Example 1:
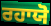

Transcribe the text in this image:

ਰਹਾਯੋ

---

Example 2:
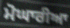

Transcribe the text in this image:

ਮੋਘਾਰੀਆ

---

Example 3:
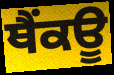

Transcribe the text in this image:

ਥੈਂਕਊ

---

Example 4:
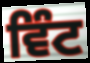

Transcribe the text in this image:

ਵਿੰਟ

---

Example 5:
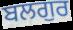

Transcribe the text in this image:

ਬਲਗੁਰ